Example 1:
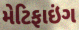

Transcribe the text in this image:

મેટિફાઇંગ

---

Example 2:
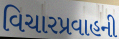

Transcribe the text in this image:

વિચારપ્રવાહની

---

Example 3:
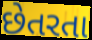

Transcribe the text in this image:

છેતરતા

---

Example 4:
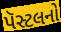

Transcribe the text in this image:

પૅસ્ટલનો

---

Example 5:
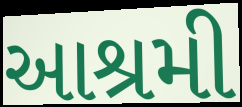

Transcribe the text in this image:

આશ્રમી